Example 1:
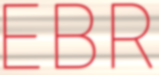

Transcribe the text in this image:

EBR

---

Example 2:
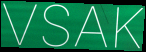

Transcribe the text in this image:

VSAK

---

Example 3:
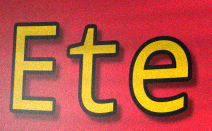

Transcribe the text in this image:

Ete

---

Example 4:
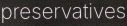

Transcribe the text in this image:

preservatives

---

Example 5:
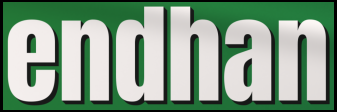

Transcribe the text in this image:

endhan